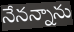
నేనన్నాను